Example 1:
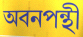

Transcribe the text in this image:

অবনপন্থী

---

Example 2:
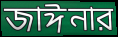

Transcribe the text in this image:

জাঈনার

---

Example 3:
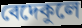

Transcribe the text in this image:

বেদেকুলে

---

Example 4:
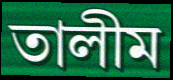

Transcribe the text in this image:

তালীম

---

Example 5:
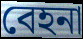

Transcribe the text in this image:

বেহনা